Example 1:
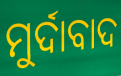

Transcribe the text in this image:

ମୁର୍ଦାବାଦ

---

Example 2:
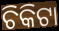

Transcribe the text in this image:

ଚିକିଟା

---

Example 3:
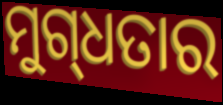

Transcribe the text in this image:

ମୁଗ୍‍ଧତାର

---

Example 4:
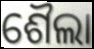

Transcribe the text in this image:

ଶୈଲା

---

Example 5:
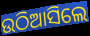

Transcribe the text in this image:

ଉଠିଆସିଲେ